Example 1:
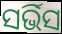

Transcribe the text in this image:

ସର୍ଭିସ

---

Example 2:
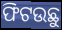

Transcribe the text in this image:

ଫିଟଉଛୁ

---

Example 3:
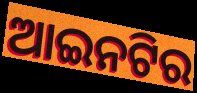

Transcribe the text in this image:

ଆଇନଟିର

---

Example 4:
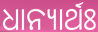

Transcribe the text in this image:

ଧାନ୍ୟାର୍ଥଃ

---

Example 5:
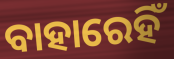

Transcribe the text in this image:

ବାହାରେହିଁ